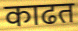
काढत